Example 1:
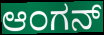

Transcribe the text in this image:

ಆಂಗನ್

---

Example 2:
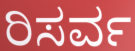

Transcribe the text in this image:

ರಿಸರ್ವ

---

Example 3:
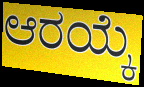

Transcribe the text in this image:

ಆರಯ್ಕೆ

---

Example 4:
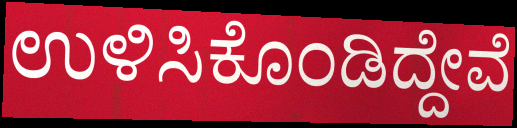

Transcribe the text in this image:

ಉಳಿಸಿಕೊಂಡಿದ್ದೇವೆ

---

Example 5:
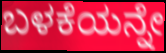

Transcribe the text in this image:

ಬಳಕೆಯನ್ನೇ